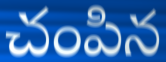
చంపిన